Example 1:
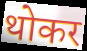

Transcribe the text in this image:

थोकर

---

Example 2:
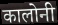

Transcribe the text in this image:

कालोनी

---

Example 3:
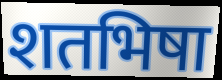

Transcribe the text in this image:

शतभिषा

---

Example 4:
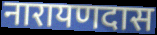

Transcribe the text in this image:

नारायणदास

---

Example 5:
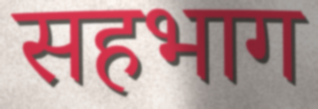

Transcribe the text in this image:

सहभाग